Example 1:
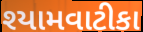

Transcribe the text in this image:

શ્યામવાટીકા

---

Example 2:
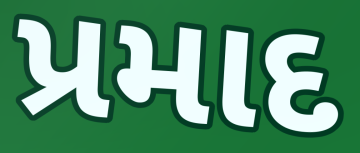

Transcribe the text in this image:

પ્રમાદ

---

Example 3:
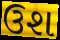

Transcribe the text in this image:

ઉશ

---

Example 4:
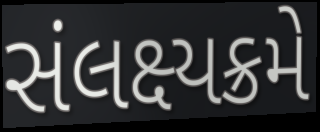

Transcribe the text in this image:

સંલક્ષ્યક્રમે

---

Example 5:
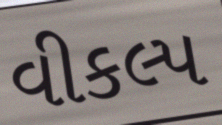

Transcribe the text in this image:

વીકલ્પ